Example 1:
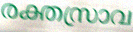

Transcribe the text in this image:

രക്തസ്രാവ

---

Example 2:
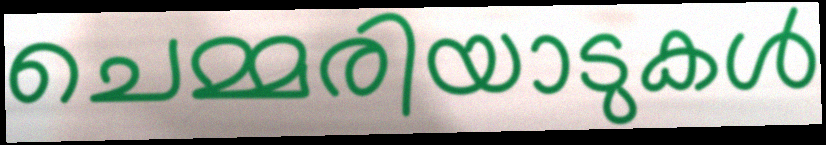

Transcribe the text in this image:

ചെമ്മരിയാടുകൾ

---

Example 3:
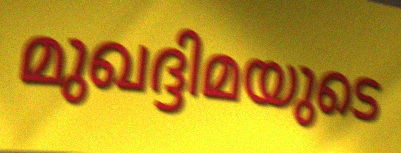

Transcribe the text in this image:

മുഖദ്ദിമയുടെ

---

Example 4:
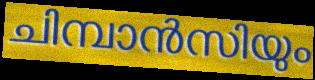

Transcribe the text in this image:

ചിമ്പാൻസിയും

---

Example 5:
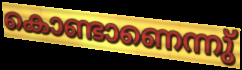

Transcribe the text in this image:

കൊണ്ടാണെന്നു്